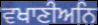
ਵਖਾਣੀਅਨਿ